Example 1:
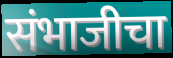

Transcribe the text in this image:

संभाजीचा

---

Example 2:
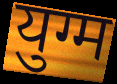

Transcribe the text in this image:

युग्म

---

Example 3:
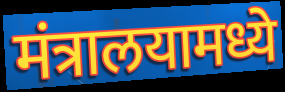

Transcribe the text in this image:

मंत्रालयामध्ये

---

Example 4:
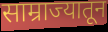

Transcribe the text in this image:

साम्राज्यातून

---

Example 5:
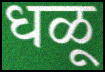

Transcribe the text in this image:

धळू